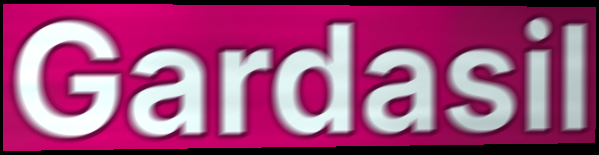
Gardasil